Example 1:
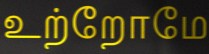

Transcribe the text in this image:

உற்றோமே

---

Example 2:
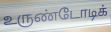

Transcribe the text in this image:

உருண்டோடிக்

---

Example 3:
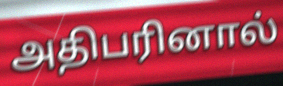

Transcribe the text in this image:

அதிபரினால்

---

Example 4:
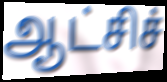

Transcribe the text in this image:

ஆட்சிச்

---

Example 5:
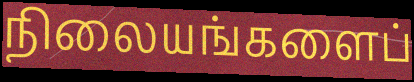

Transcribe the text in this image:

நிலையங்களைப்